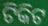
ଟିକିଟ